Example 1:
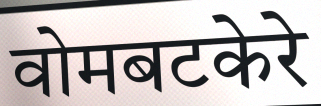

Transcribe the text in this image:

वोमबटकेरे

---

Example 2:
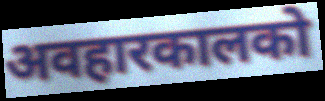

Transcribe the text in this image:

अवहारकालको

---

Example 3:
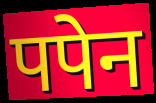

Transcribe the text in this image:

पपेन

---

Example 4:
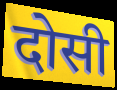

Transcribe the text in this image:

दोसी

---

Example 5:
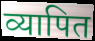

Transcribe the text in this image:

व्यापित